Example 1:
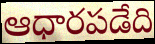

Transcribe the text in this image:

ఆధారపడేది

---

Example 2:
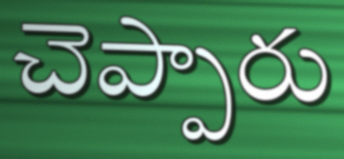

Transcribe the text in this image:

చెప్పారు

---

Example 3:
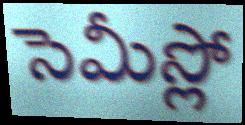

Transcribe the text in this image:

సెమీస్లో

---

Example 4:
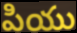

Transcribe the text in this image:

పియు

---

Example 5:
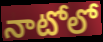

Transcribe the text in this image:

నాటోలో